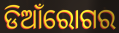
ଡିଆଁରୋଗର